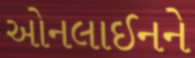
ઓનલાઈનને